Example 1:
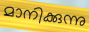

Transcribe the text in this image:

മാനിക്കുന്നു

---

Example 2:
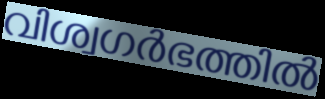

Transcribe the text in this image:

വിശ്വഗർഭത്തിൽ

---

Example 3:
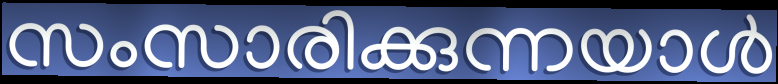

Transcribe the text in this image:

സംസാരിക്കുന്നയാൾ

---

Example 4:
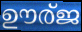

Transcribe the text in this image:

ഊര്ജ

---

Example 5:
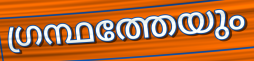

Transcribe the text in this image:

ഗ്രന്ഥത്തേയും